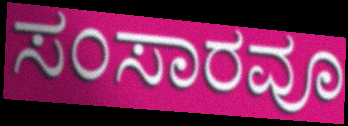
ಸಂಸಾರವೂ